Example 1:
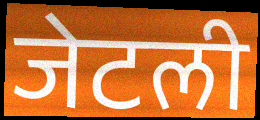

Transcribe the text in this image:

जेटली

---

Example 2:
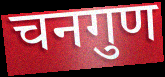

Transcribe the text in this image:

चनगुण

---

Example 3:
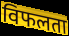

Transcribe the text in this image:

विफलता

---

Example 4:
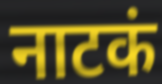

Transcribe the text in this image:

नाटकं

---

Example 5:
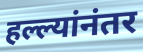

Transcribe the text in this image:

हल्ल्यांनंतर